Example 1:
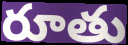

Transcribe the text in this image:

రూతు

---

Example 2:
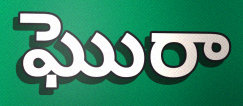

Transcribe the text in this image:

ఘొరా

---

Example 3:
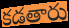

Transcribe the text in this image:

కడతారు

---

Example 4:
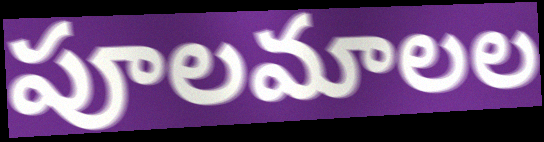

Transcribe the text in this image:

పూలమాలల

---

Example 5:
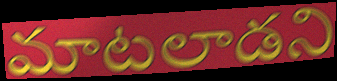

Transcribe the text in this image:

మాటలాడని